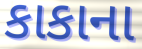
કાકાના